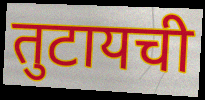
तुटायची